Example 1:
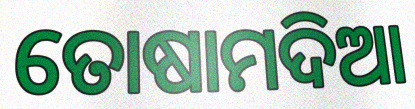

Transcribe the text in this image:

ତୋଷାମଦିଆ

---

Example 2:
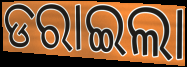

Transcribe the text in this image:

ଡରାଇଲା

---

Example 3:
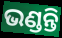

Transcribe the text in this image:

ଭଣ୍ଡନ୍ତି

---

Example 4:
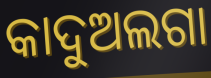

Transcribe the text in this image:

କାଦୁଅଲଗା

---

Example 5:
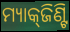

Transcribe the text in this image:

ମ୍ୟାକ୍‌ଜିଣ୍ଟି